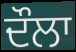
ਦੌਲਾ